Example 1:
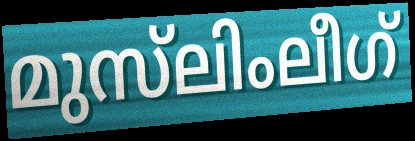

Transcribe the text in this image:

മുസ്‌ലിംലീഗ്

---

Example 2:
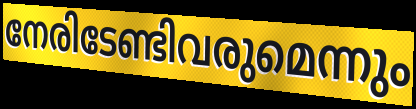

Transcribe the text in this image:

നേരിടേണ്ടിവരുമെന്നും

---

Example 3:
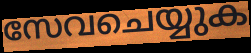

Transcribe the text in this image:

സേവചെയ്യുക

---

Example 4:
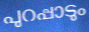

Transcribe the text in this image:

പുറപ്പാടും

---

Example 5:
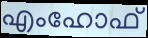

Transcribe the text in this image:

എംഹോഫ്